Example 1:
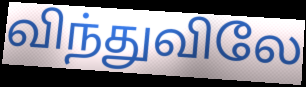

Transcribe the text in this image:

விந்துவிலே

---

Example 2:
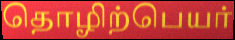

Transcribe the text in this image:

தொழிற்பெயர்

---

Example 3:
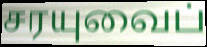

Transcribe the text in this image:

சரயுவைப்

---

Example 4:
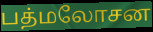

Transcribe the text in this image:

பத்மலோசன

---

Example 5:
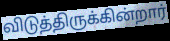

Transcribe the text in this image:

விடுத்திருக்கின்றார்